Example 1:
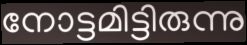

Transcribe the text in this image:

നോട്ടമിട്ടിരുന്നു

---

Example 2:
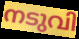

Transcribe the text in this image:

നടുവി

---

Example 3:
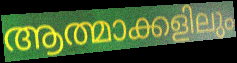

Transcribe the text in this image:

ആത്മാക്കളിലും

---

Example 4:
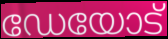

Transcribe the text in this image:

ഡേയോട്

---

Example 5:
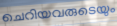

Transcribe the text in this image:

ചെറിയവരുടെയും